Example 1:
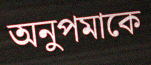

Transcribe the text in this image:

অনুপমাকে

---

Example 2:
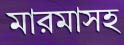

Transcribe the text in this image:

মারমাসহ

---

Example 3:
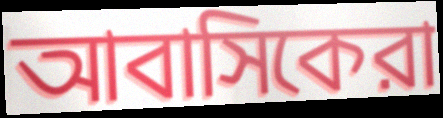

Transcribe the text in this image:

আবাসিকেরা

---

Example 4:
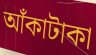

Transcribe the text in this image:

আঁকাটাকা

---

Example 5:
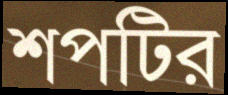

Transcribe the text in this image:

শপটির